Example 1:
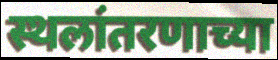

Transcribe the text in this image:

स्थलांतरणाच्या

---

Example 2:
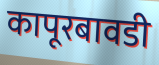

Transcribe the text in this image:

कापूरबावडी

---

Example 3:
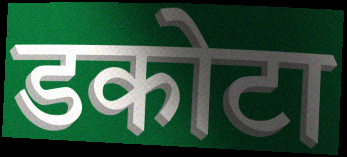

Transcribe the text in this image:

डकोटा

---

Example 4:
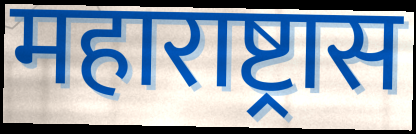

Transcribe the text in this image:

महाराष्ट्रास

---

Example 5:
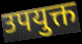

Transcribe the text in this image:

उपयुक्त